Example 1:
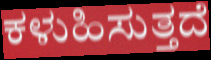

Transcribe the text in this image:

ಕಳುಹಿಸುತ್ತದೆ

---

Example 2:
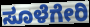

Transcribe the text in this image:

ಸೂಳೆಗೇರಿ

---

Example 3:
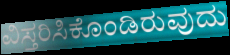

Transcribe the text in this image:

ವಿಸ್ತರಿಸಿಕೊಂಡಿರುವುದು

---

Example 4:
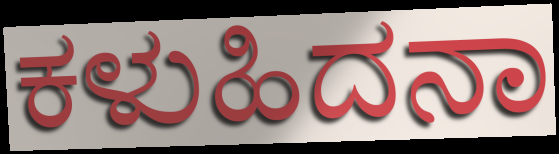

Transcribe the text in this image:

ಕಳುಹಿದನಾ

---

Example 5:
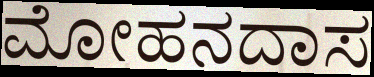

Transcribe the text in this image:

ಮೋಹನದಾಸ